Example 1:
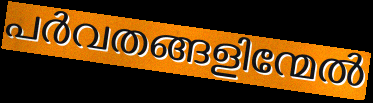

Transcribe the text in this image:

പർവതങ്ങളിന്മേൽ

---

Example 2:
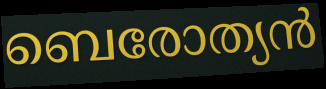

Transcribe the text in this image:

ബെരോത്യൻ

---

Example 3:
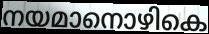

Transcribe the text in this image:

നയമാനൊഴികെ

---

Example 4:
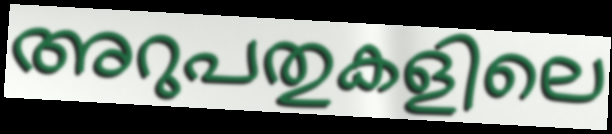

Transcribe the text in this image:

അറുപതുകളിലെ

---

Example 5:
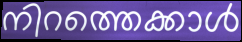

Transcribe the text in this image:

നിറത്തെക്കാൾ